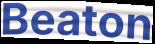
Beaton